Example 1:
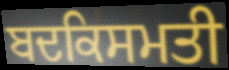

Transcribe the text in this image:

ਬਦਕਿਸਮਤੀ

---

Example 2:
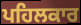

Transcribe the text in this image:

ਪਹਿਲਕਾਰ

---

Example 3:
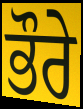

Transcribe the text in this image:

ਭੌਰੇ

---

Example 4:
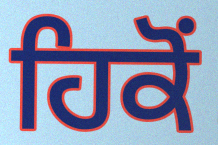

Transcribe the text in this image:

ਹਿਕੋਂ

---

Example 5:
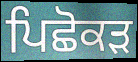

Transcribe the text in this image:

ਪਿਛੋਕੜ